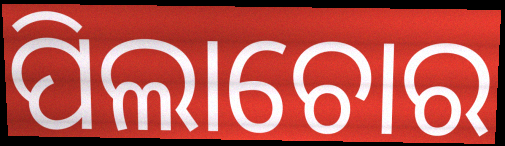
ପିଲାଚୋର